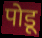
पोडू